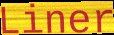
Liner